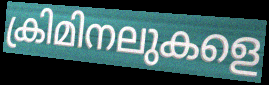
ക്രിമിനലുകളെ